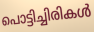
പൊട്ടിച്ചിരികൾ